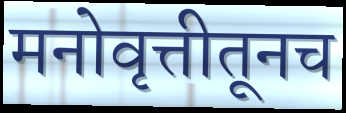
मनोवृत्तीतूनच